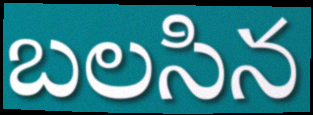
బలసిన